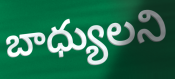
బాధ్యులని